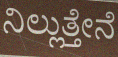
ನಿಲ್ಲುತ್ತೇನೆ